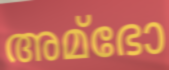
അമ്ഭോ